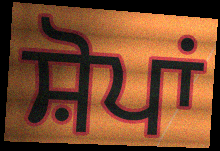
ਸ਼ੋਪਾਂ